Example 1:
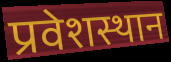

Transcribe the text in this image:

प्रवेशस्थान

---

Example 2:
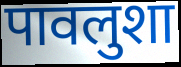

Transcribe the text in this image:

पावलुशा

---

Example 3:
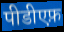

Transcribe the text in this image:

पीडीएफ़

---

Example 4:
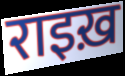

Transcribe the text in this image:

राइख़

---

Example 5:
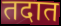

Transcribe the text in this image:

तदात